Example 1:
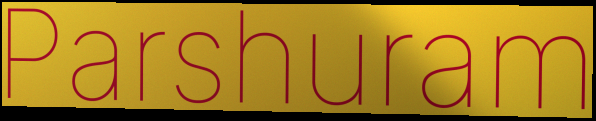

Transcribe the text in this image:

Parshuram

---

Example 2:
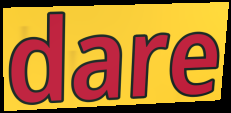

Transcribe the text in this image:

dare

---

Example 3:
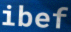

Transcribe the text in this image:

ibef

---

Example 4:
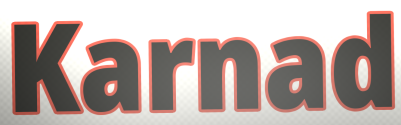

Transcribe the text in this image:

Karnad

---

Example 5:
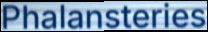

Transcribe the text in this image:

Phalansteries